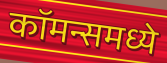
कॉमन्समध्ये